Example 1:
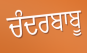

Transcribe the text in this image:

ਚੰਦਰਬਾਬੂ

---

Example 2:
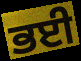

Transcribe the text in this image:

ਭਈ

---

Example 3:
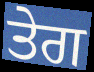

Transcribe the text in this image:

ਤੇਗ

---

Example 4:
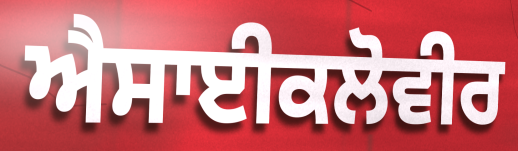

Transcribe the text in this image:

ਐਸਾਈਕਲੋਵੀਰ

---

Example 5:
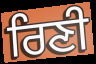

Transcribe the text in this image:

ਰਿਣੀ